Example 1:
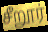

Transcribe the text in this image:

சீறூர்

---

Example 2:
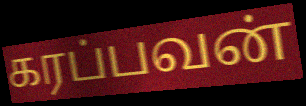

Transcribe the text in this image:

கரப்பவன்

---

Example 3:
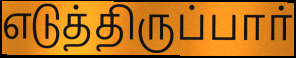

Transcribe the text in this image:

எடுத்திருப்பார்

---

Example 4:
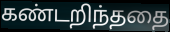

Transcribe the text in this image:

கண்டறிந்ததை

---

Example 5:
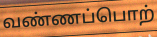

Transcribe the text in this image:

வண்ணப்பொற்